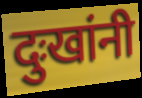
दुःखांनी